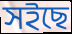
সইছে